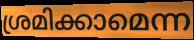
ശ്രമിക്കാമെന്ന